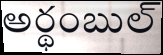
అర్థంబుల్